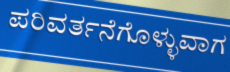
ಪರಿವರ್ತನೆಗೊಳ್ಳುವಾಗ